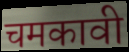
चमकावी